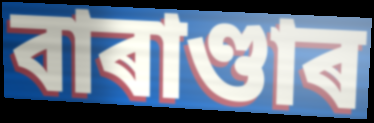
বাৰাণ্ডাৰ